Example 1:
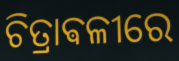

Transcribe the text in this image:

ଚିତ୍ରାଵଳୀରେ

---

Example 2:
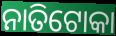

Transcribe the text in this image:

ନାତିଟୋକା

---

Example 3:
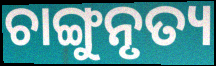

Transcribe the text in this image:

ଚାଙ୍ଗୁନୃତ୍ୟ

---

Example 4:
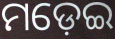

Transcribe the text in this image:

ମଡ଼େଇ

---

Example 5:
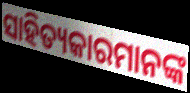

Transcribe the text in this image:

ସାହିତ୍ୟକାରମାନଙ୍କ